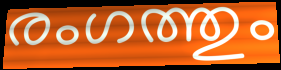
രംഗത്തും